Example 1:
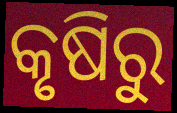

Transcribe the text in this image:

କୃଷିରୁ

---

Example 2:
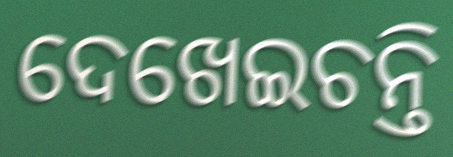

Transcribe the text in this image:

ଦେଖେଇଚନ୍ତି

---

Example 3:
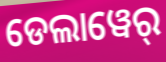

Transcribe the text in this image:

ଡେଲାୱେର୍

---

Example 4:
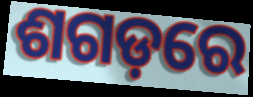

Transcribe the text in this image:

ଶଗଡ଼ରେ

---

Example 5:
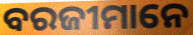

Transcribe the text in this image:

ବରଜୀମାନେ